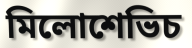
মিলোশেভিচ